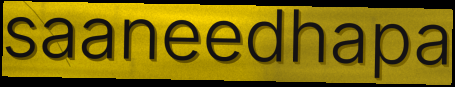
saaneedhapa